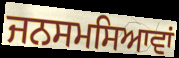
ਜਨਸਮਸਿਆਵਾਂ